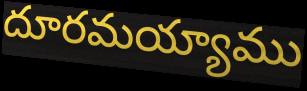
దూరమయ్యాము